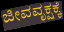
ಜೀವವೃಕ್ಷಕ್ಕೆ